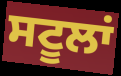
ਸਟੂਲਾਂ